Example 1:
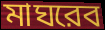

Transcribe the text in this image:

মাঘরেব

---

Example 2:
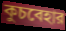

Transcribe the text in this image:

কুচবেহার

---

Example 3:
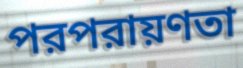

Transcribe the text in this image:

পরপরায়ণতা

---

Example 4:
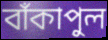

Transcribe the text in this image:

বাঁকাপুল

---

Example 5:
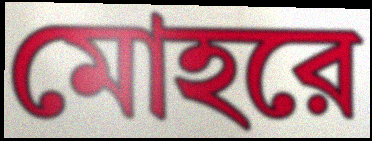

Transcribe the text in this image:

মোহরে